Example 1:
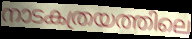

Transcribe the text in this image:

നാടകത്രയത്തിലെ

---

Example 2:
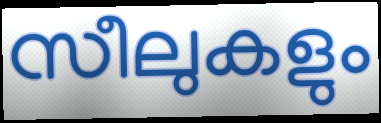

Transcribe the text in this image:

സീലുകളും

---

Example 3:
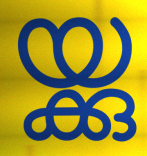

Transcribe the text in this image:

യ്ക്കു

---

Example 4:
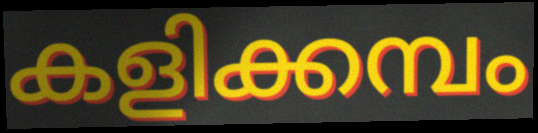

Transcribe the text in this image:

കളിക്കമ്പം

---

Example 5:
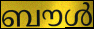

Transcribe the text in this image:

ബൗൾ